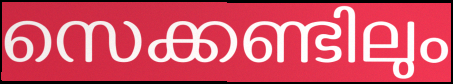
സെക്കണ്ടിലും